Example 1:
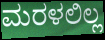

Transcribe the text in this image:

ಮರಳಲಿಲ್ಲ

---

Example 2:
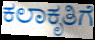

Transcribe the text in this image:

ಕಲಾಕೃತಿಗೆ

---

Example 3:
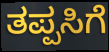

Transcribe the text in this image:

ತಪ್ಪಸಿಗೆ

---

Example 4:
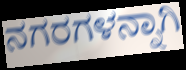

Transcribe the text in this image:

ನಗರಗಳನ್ನಾಗಿ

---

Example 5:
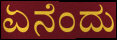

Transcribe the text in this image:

ಏನೆಂದು